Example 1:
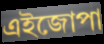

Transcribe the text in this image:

এইজোপা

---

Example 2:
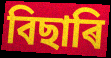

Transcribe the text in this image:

বিছাৰি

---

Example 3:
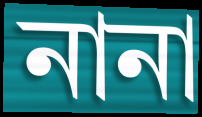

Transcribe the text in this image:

নানা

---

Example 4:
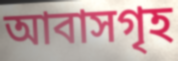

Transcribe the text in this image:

আবাসগৃহ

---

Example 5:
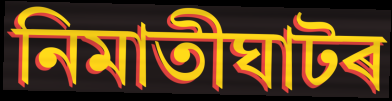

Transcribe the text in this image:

নিমাতীঘাটৰ